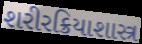
શરીરક્રિયાશાસ્ત્ર